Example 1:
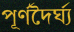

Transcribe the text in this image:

পূৰ্ণদৈৰ্ঘ্য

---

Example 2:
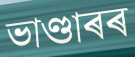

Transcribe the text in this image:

ভাণ্ডাৰৰ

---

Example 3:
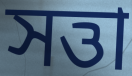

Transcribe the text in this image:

সত্তা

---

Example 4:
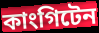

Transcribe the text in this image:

কাংগিটেন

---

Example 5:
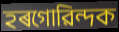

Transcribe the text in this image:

হৰগোৱিন্দক